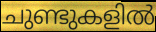
ചുണ്ടുകളിൽ